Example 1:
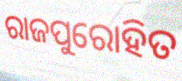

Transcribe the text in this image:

ରାଜପୁରୋହିତ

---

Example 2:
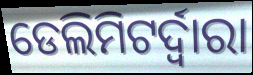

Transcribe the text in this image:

ଡେଲିମିଟର୍ଦ୍ୱାରା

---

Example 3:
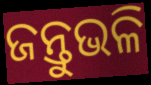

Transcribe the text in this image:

ଜନ୍ତୁଭଳି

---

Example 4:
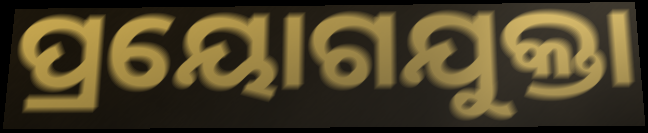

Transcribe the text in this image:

ପ୍ରୟୋଗଯୁକ୍ତା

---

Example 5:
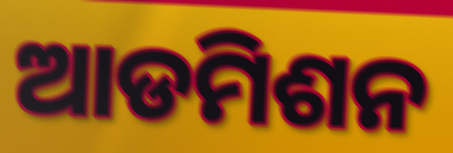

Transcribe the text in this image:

ଆଡମିଶନ